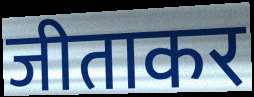
जीताकर